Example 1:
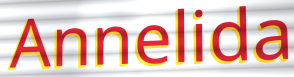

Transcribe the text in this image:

Annelida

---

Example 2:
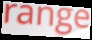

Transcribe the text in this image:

range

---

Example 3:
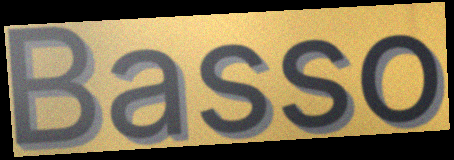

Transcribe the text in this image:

Basso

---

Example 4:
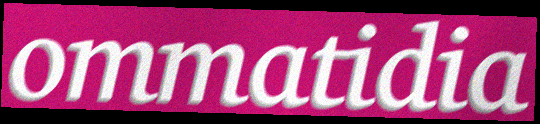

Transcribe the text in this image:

ommatidia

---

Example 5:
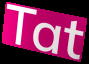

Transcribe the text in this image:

Tat